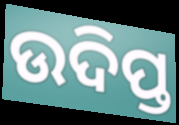
ଉଦିପ୍ତ